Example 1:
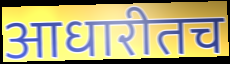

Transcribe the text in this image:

आधारीतच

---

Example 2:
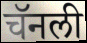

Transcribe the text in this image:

चॅनली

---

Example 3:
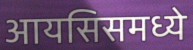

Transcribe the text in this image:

आयसिसमध्ये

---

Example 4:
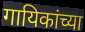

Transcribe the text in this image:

गायिकांच्या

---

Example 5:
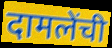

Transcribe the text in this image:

दामलेंची